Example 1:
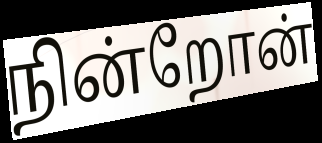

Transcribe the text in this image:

நின்றோன்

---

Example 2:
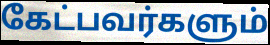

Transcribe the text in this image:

கேட்பவர்களும்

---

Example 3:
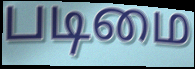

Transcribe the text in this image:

படிமை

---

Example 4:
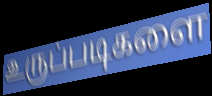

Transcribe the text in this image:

உருப்படிகளை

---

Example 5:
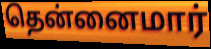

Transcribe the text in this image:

தென்னைமார்